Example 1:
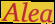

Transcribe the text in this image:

Alea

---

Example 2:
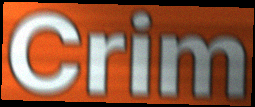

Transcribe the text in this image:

Crim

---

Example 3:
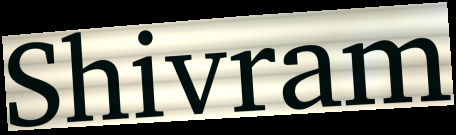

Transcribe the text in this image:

Shivram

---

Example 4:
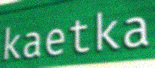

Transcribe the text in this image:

kaetka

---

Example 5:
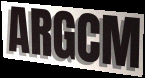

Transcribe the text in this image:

ARGCM